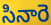
సినారె